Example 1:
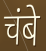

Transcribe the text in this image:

चंबे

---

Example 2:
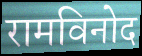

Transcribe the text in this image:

रामविनोद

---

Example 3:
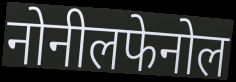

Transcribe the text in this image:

नोनीलफेनोल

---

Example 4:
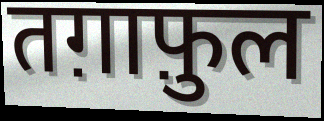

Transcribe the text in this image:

तग़ाफ़ुल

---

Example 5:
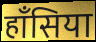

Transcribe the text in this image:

हाँसिया